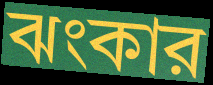
ঝংকার